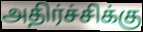
அதிர்ச்சிக்கு